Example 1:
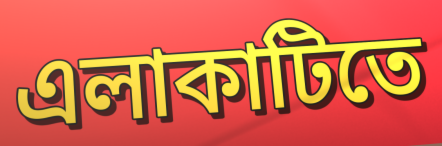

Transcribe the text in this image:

এলাকাটিতে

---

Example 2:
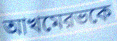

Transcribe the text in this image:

আখমেরভকে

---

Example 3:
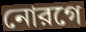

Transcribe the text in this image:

নোরগে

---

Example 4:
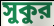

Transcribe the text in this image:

সুকুর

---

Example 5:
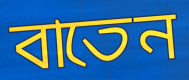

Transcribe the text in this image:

বাতেন